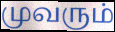
முவரும்